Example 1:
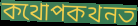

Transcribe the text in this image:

কথোপকথনত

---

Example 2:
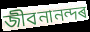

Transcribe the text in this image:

জীবনানন্দৰ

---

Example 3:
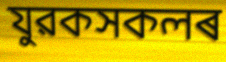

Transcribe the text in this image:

যুৱকসকলৰ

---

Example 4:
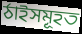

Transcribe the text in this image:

ঠাইসমূহত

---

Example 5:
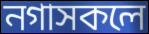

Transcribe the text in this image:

নগাসকলে